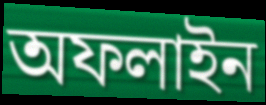
অফলাইন